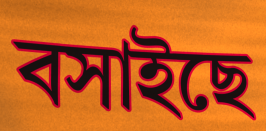
বসাইছে